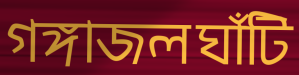
গঙ্গাজলঘাঁটি